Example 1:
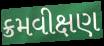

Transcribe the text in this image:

ક્રમવીક્ષણ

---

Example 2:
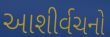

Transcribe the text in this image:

આશીર્વચનો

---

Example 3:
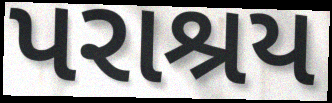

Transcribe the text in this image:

પરાશ્રય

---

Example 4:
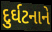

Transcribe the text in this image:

દુર્ઘટનાને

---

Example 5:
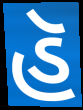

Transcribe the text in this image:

હૅ